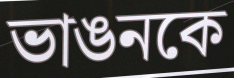
ভাঙনকে